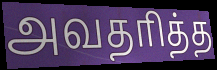
அவதரித்த